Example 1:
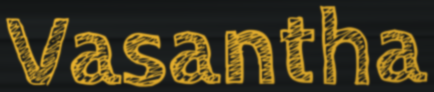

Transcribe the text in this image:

Vasantha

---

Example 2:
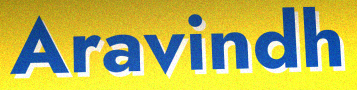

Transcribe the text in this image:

Aravindh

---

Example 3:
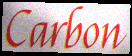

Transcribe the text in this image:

Carbon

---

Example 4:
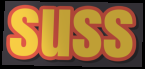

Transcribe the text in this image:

suss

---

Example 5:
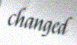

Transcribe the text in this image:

changed